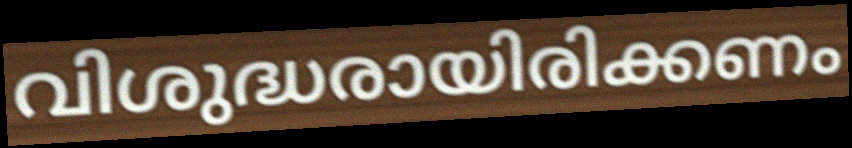
വിശുദ്ധരായിരിക്കണം